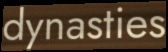
dynasties